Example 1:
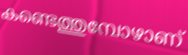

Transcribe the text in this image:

കണ്ടെത്തുമ്പോഴാണ്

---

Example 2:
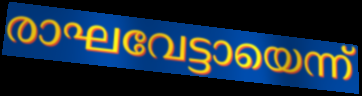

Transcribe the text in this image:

രാഘവേട്ടായെന്ന്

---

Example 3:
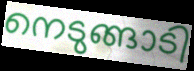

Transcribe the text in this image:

നെടുങ്ങാടി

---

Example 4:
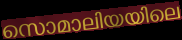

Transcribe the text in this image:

സൊമാലിയയിലെ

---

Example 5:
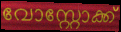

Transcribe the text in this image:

വോസ്റ്റോക്ക്